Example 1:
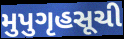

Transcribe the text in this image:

મુપુગૃહસૂચી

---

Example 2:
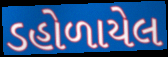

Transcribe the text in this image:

ડહોળાયેલ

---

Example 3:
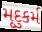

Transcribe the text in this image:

મૃદુકર્મ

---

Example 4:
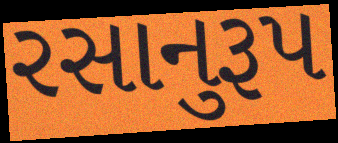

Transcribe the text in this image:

રસાનુરૂપ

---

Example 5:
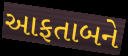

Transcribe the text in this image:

આફતાબને